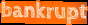
bankrupt